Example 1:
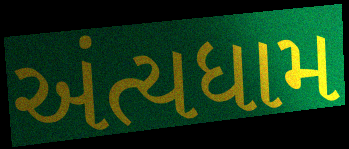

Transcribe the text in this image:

અંત્યધામ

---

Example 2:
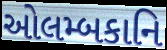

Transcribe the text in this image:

ઓલમ્બકાનિ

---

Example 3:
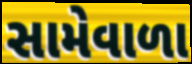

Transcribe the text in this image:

સામેવાળા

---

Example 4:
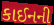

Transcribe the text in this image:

કાઈનની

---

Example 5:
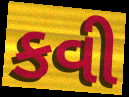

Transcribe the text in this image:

કવી